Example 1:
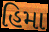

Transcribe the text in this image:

હિમા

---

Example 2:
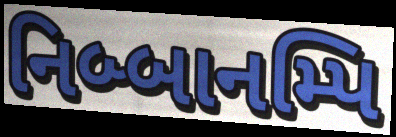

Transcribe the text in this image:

નિબ્બાનમ્પિ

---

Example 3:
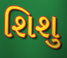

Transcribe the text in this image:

શિશુ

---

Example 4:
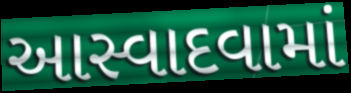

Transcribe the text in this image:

આસ્વાદવામાં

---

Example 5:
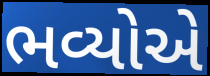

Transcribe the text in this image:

ભવ્યોએ